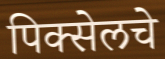
पिक्सेलचे